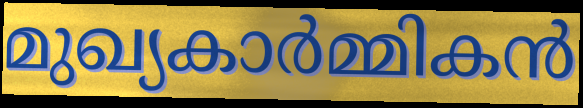
മുഖ്യകാർമ്മികൻ